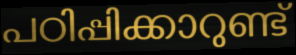
പഠിപ്പിക്കാറുണ്ട്